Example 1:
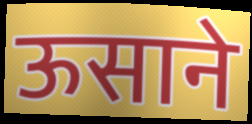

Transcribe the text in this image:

ऊसाने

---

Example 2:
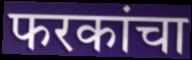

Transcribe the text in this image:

फरकांचा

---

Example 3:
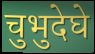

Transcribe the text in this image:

चुभुदेघे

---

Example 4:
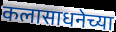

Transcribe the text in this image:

कलासाधनेच्या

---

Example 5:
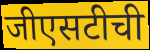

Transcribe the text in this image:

जीएसटीची